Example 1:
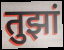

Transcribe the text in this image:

तुझां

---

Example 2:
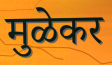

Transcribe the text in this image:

मुळेकर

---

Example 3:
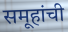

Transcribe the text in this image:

समूहांची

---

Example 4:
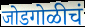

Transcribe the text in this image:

जोडगोळीचं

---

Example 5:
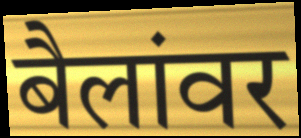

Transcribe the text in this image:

बैलांवर